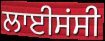
ਲਾਈਸਂਸੀ